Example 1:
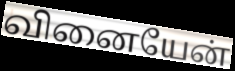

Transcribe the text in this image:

வினையேன்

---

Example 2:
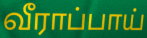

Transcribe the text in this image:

வீராப்பாய்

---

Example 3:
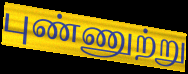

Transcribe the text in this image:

புண்ணுற்று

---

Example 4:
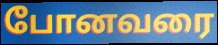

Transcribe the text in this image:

போனவரை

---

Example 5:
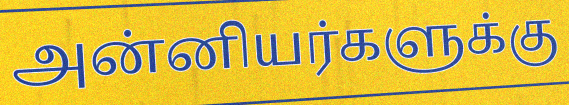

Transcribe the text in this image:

அன்னியர்களுக்கு